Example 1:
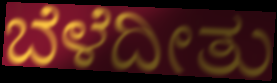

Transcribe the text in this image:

ಬೆಳೆದೀತು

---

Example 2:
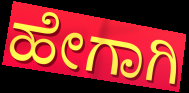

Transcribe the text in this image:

ಹೇಗಾಗಿ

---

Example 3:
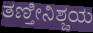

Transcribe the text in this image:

ತಣ್ತೀನಿಶ್ಚಯ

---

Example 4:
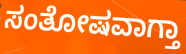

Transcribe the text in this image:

ಸಂತೋಷವಾಗ್ತಾ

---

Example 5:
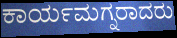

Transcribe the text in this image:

ಕಾರ್ಯಮಗ್ನರಾದರು